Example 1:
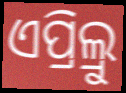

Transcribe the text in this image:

ଏପ୍ରିଲ୍ରୁ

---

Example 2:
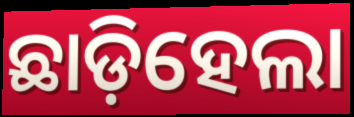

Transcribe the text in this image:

ଛାଡ଼ିହେଲା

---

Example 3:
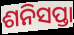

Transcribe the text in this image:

ଶନିସପ୍ତା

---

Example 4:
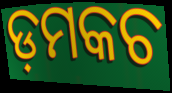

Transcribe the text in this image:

ଡ଼ମକଚ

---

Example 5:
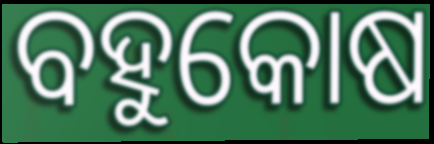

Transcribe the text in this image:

ବହୁକୋଷ